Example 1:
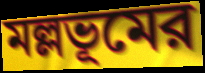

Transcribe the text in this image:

মল্লভূমের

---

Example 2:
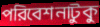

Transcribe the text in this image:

পরিবেশনাটুকু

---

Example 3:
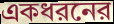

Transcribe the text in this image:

একধরনের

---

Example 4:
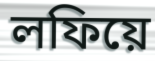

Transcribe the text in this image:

লফিয়ে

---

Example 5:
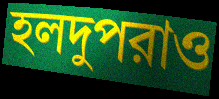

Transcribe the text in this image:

হলদুপরাও